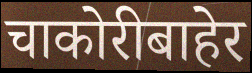
चाकोरीबाहेर